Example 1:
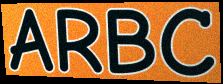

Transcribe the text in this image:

ARBC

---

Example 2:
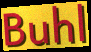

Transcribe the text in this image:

Buhl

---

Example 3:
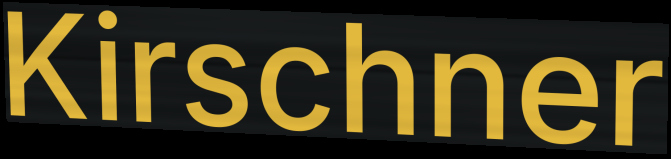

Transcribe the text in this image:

Kirschner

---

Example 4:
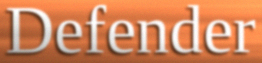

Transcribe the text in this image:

Defender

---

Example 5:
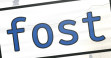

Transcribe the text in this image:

fost